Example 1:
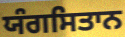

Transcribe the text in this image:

ਯੰਗਸਿਤਾਨ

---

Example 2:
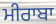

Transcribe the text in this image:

ਮੀਰਾਬਾ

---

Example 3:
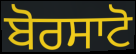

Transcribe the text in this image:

ਬੋਰਸਾਟੋ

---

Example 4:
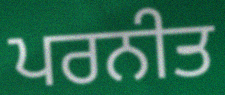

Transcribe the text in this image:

ਪਰਨੀਤ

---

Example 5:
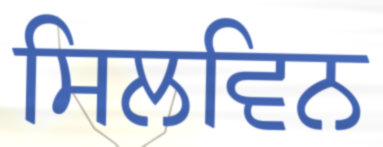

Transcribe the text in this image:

ਸਿਲਵਿਨ